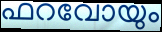
ഫറവോയും